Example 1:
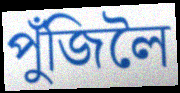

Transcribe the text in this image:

পুঁজিলৈ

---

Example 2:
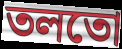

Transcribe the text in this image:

তলতো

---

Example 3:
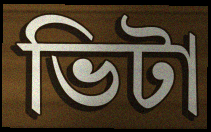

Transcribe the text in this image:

ভিটা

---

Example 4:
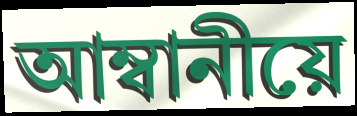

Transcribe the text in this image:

আম্বানীয়ে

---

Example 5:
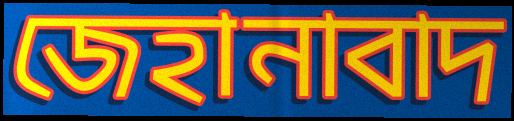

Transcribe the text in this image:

জেহানাবাদ